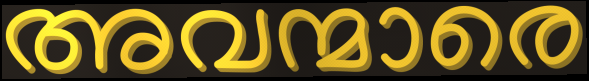
അവന്മാരെ